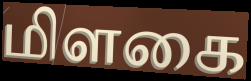
மிளகை